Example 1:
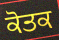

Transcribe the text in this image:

ਕੋਤਕ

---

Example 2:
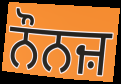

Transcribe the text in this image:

ਨੌਨਜ਼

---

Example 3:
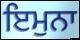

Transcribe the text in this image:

ਇਮੁਨਾ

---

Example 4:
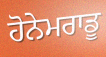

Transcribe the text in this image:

ਹੋਨੇਮਰਾਡੂ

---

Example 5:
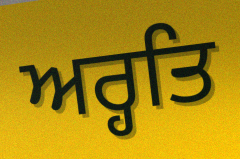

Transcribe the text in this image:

ਅਰ੍ਹਤਿ